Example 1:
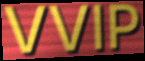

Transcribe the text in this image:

VVIP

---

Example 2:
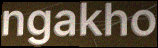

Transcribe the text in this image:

ngakho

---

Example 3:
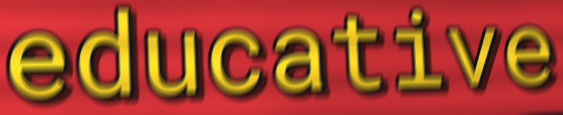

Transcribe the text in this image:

educative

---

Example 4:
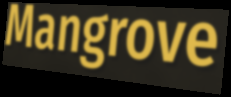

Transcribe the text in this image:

Mangrove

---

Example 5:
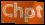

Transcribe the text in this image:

Chpt